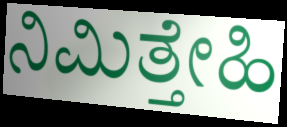
ನಿಮಿತ್ತೇಹಿ